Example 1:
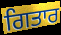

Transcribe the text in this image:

ਗਿਤਾਰ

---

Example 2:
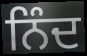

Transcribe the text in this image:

ਨਿੰਦ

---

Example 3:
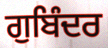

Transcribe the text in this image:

ਗੁਬਿੰਦਰ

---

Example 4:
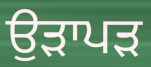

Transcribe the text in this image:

ਉੜਾਪੜ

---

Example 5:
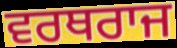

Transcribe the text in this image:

ਵਰਥਰਾਜ